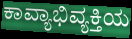
ಕಾವ್ಯಾಭಿವ್ಯಕ್ತಿಯ